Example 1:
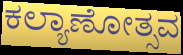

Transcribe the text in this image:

ಕಲ್ಯಾಣೋತ್ಸವ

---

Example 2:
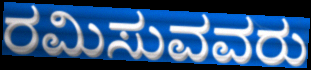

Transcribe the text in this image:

ರಮಿಸುವವರು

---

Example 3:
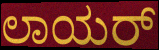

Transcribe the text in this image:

ಲಾಯರ್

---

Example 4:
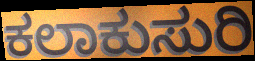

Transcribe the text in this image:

ಕಲಾಕುಸುರಿ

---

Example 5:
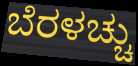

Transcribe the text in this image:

ಬೆರಳಚ್ಚು